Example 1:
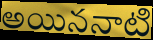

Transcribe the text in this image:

అయిననాటి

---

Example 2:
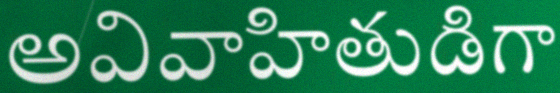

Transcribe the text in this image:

అవివాహితుడిగా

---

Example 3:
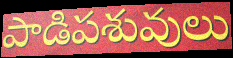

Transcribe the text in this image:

పాడిపశువులు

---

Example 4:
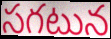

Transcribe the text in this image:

సగటున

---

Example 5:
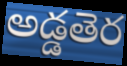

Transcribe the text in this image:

అడ్డతెర